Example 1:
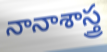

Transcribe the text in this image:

నానాశాస్త్ర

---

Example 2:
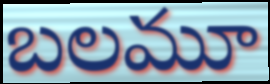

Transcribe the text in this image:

బలమూ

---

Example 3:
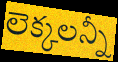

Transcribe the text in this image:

లెక్కలన్నీ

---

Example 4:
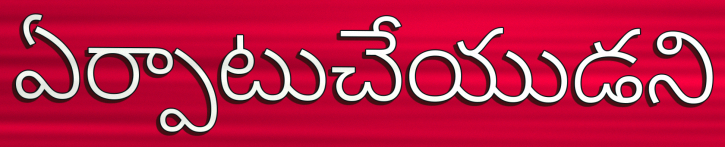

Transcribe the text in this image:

ఏర్పాటుచేయుడని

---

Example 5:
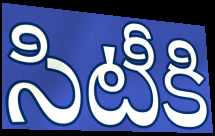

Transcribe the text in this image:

సిటీకి